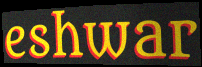
eshwar